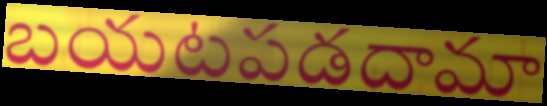
బయటపడదామా